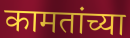
कामतांच्या